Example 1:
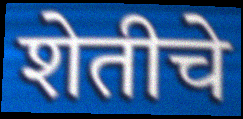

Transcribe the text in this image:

शेतीचे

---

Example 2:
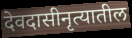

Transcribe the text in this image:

देवदासीनृत्यातील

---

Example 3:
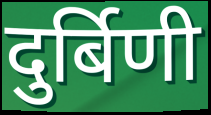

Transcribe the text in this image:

दुर्बिणी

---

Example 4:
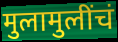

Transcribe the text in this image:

मुलामुलींचं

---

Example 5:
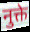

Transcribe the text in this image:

नुक्ते